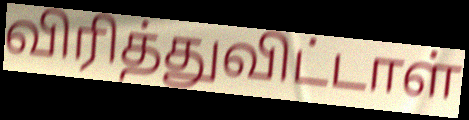
விரித்துவிட்டாள்